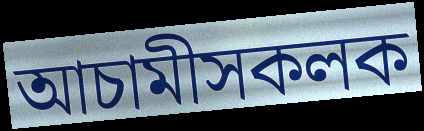
আচামীসকলক